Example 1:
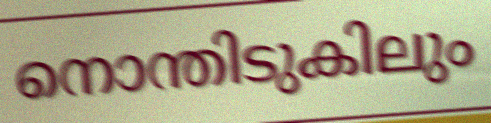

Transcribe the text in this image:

നൊന്തിടുകിലും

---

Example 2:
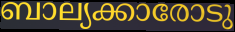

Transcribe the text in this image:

ബാല്യക്കാരോടു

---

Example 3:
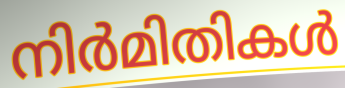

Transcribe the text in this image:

നിർമിതികൾ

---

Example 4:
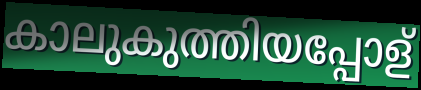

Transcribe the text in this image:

കാലുകുത്തിയപ്പോള്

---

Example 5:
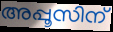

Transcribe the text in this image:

അപ്പൂസിന്